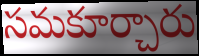
సమకూర్చారు